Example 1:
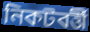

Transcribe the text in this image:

নিকটবর্ত্তী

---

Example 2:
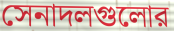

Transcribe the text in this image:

সেনাদলগুলোর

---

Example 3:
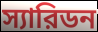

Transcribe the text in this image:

স্যারিডন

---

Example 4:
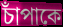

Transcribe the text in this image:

চাঁপাকে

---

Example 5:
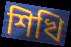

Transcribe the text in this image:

শিখি